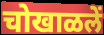
चोखाळलें